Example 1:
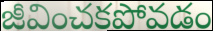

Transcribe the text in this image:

జీవించకపోవడం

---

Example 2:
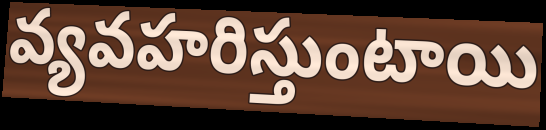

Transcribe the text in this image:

వ్యవహరిస్తుంటాయి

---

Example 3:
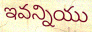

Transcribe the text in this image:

ఇవన్నియు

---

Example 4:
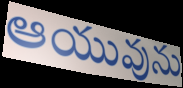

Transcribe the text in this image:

ఆయువును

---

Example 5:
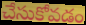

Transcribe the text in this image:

చేసుకోవడం